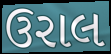
ઉરાલ